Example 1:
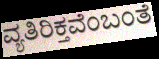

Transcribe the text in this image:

ವ್ಯತಿರಿಕ್ತವೆಂಬಂತೆ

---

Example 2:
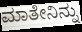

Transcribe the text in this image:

ಮಾತೇನಿನ್ನು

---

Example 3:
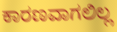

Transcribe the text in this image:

ಕಾರಣವಾಗಲಿಲ್ಲ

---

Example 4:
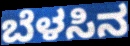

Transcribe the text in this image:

ಬೆಳಸಿನ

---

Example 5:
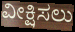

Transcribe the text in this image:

ವೀಕ್ಷಿಸಲು